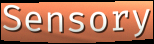
Sensory